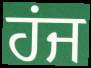
ਹਂਜ